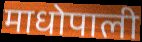
माधोपाली